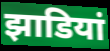
झाडियां